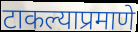
टाकल्याप्रमाणे